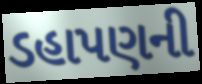
ડહાપણની